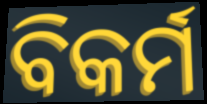
ବିକର୍ମ